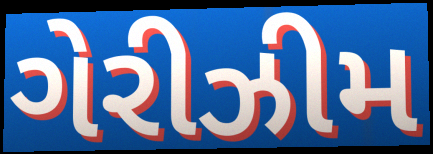
ગેરીઝીમ